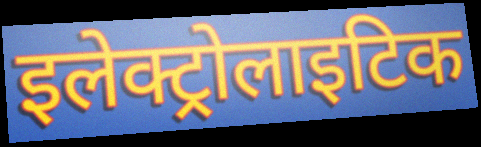
इलेक्ट्रोलाइटिक